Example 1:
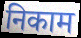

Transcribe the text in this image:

निकाम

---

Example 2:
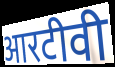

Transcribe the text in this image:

आरटीवी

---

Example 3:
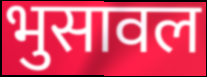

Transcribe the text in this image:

भुसावल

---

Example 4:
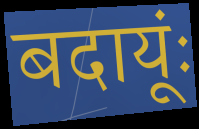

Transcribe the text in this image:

बदायूंः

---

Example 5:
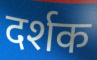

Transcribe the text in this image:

दर्शक